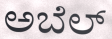
ಅಬೆಲ್